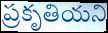
ప్రకృతియని